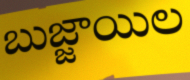
బుజ్జాయిల